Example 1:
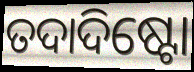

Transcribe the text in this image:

ତଦାଦିଷ୍ଟୋ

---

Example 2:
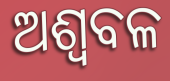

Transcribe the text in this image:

ଅଶ୍ୱବଳ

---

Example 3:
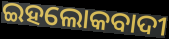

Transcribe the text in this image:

ଇହଲୋକବାଦୀ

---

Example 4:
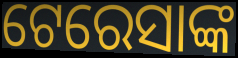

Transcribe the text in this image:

ଟେରେସାଙ୍କ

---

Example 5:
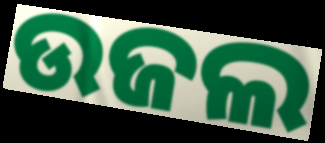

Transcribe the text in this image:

ଉଜଲ